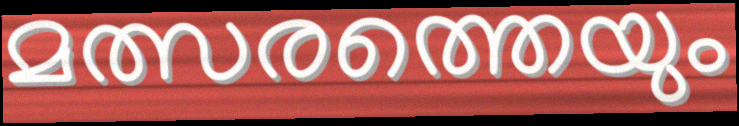
മത്സരത്തെയും